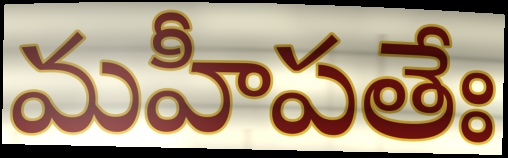
మహీపతేః